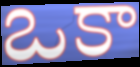
ఒకా